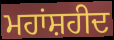
ਮਹਾਂਸ਼ਹੀਦ